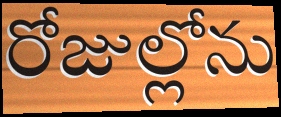
రోజుల్లోను